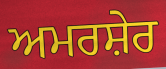
ਅਮਰਸ਼ੇਰ